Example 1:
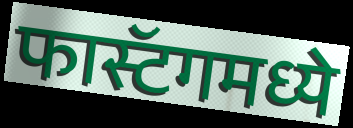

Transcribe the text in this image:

फास्टॅगमध्ये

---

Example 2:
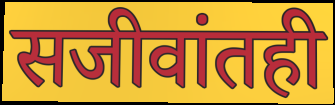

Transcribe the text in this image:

सजीवांतही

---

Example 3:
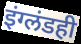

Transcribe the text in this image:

इंग्लंडही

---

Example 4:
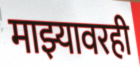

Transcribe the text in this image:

माझ्यावरही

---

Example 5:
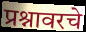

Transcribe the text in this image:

प्रश्नावरचे